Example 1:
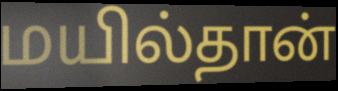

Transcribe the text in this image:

மயில்தான்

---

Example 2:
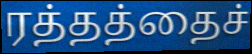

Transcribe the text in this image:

ரத்தத்தைச்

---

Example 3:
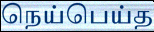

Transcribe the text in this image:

நெய்பெய்த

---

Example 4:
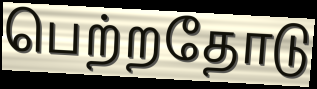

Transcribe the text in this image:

பெற்றதோடு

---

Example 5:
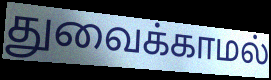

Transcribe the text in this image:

துவைக்காமல்